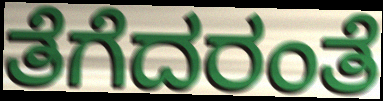
ತೆಗೆದರಂತೆ